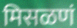
मिसळणं